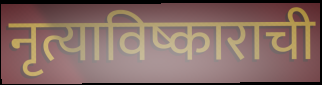
नृत्याविष्काराची